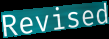
Revised